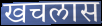
खचलास